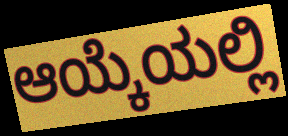
ಆಯ್ಕೆಯಲ್ಲಿ